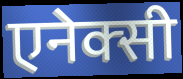
एनेक्‍सी